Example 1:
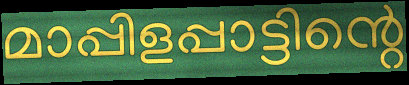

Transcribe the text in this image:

മാപ്പിളപ്പാട്ടിന്റെ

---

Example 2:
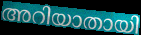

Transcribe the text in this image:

അറിയാതായി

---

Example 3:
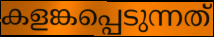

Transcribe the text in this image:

കളങ്കപ്പെടുന്നത്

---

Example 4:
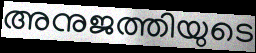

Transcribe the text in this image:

അനുജത്തിയുടെ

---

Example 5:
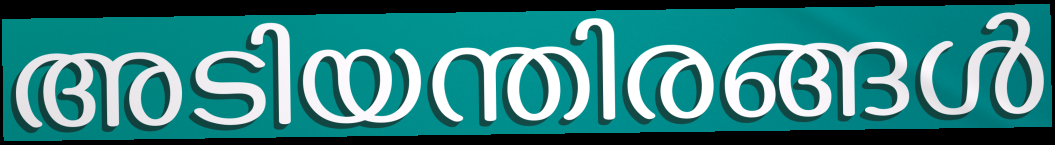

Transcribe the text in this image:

അടിയന്തിരങ്ങൾ